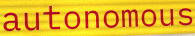
autonomous